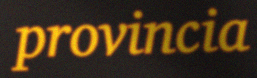
provincia